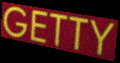
GETTY